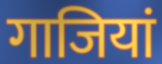
गाजियां